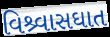
વિશ્ર્વાસઘાત